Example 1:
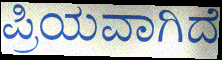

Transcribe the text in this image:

ಪ್ರಿಯವಾಗಿದೆ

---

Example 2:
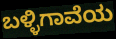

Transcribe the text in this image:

ಬಳ್ಳಿಗಾವೆಯ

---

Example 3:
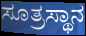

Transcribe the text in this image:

ಸೂತ್ರಸ್ಥಾನ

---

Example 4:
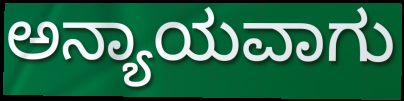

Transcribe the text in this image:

ಅನ್ಯಾಯವಾಗು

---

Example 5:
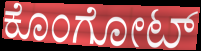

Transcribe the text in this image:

ಕೊಂಗೋಟ್